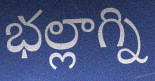
భల్లాగ్ని